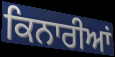
ਕਿਨਾਰੀਆਂ